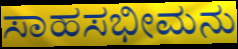
ಸಾಹಸಭೀಮನು